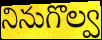
నినుగొల్వ